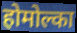
होमोल्का